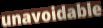
unavoidable